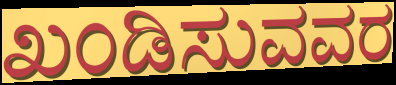
ಖಂಡಿಸುವವರ